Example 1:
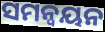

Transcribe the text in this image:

ସମନ୍ୱୟନ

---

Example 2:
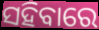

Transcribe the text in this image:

ସହିବାରେ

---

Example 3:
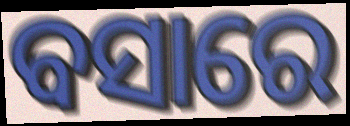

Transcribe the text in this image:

ବସାରେ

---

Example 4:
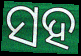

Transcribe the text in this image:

ସହ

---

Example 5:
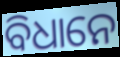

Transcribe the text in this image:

ବିଧାନେ